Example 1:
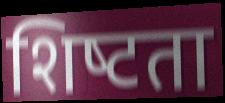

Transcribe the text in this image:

शिष्‍टता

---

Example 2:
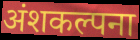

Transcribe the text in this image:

अंशकल्पना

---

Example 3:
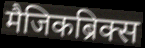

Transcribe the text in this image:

मैजिकब्रिक्स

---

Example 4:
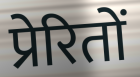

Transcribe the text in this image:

प्रेरितों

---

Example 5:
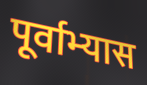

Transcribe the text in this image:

पूर्वाभ्यास